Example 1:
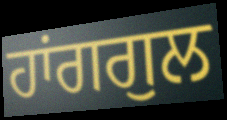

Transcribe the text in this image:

ਹਾਂਗਗੁਲ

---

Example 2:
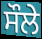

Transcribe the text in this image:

ਸੌਲੇ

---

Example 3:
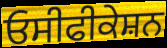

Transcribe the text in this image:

ਓਸੀਫੀਕੇਸ਼ਨ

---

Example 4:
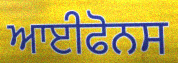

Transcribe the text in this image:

ਆਈਫੋਨਸ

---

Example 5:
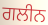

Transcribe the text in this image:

ਗਲੀਨ